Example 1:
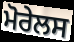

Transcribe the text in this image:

ਮੋਰੇਲਸ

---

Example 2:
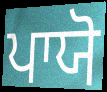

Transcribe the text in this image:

ਪਾਯੋ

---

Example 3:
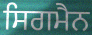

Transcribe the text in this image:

ਸਿਗਮੈਨ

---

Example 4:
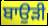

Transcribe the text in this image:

ਬਾਉੜੀ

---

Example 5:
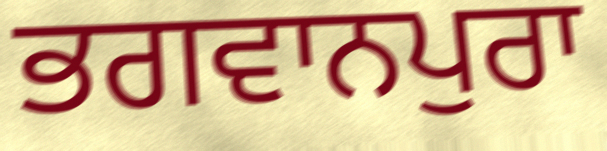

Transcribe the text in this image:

ਭਗਵਾਨਪੁਰਾ